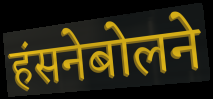
हंसनेबोलने